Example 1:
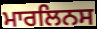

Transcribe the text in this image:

ਮਾਰਲਿਨਸ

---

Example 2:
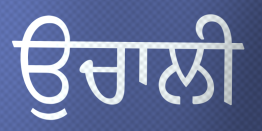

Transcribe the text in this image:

ਉਚਾਲੀ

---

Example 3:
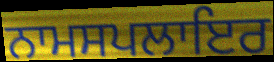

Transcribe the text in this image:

ਨਾਮਸਪਲਾਇਰ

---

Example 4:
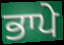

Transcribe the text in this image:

ਭਾਪੇ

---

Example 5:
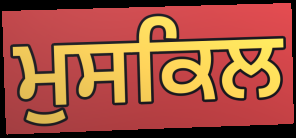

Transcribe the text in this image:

ਮੁਸਕਿਲ